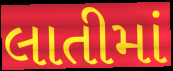
લાતીમાં